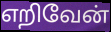
எறிவேன்